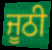
ਜੂਠੀ